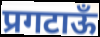
प्रगटाऊँ